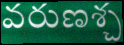
వరుణశ్చ